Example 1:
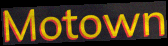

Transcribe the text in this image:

Motown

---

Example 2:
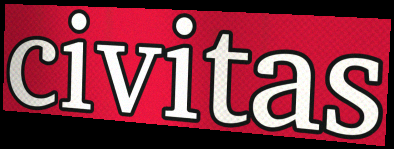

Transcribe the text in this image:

civitas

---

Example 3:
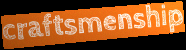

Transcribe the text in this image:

craftsmenship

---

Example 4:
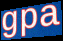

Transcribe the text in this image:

gpa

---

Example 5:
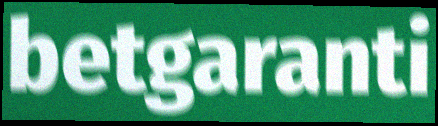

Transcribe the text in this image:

betgaranti